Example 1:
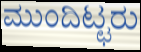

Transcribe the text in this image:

ಮುಂದಿಟ್ಟರು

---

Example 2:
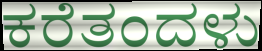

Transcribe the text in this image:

ಕರೆತಂದಳು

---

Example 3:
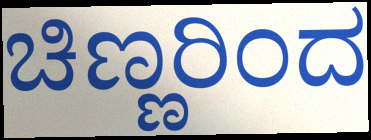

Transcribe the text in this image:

ಚಿಣ್ಣರಿಂದ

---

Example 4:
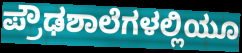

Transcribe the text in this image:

ಪ್ರೌಢಶಾಲೆಗಳಲ್ಲಿಯೂ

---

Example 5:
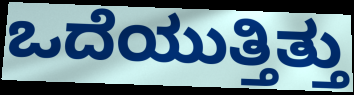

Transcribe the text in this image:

ಒದೆಯುತ್ತಿತ್ತು